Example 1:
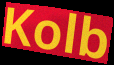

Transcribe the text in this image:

Kolb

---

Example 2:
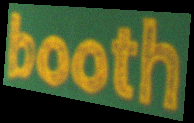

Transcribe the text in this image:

booth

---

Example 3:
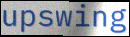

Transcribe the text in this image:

upswing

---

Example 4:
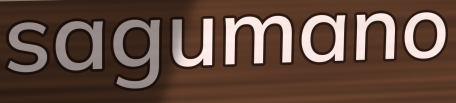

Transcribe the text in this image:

sagumano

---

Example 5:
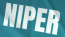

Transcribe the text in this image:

NIPER